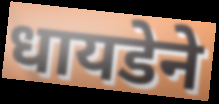
धायडेने